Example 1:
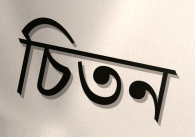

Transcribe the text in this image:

চিতন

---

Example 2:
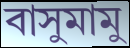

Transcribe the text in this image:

বাসুমামু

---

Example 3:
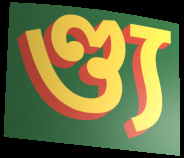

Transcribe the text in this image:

ণ্ড্য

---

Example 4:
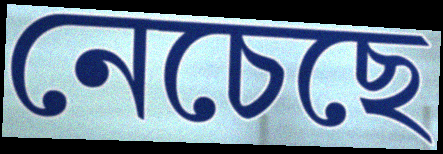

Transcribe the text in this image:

নেচেছে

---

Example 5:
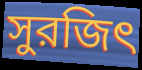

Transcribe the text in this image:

সুরজিৎ